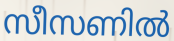
സീസണിൽ